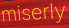
miserly